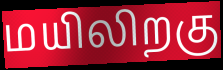
மயிலிறகு